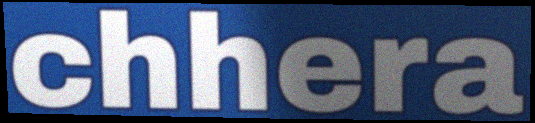
chhera